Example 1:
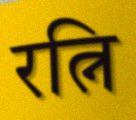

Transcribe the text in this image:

रत्नि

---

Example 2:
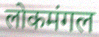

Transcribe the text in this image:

लोकमंगल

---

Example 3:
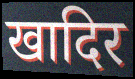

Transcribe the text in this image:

खादिर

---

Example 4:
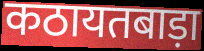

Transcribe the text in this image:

कठायतबाड़ा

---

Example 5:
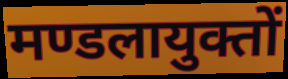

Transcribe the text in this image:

मण्डलायुक्तों